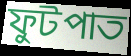
ফুটপাত